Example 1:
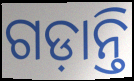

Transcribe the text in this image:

ଗଡ଼ାନ୍ତି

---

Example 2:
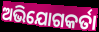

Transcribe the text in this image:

ଅଭିଯୋଗକର୍ତା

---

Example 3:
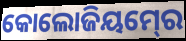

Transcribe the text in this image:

କୋଲୋଜିୟମ୍‍ରେ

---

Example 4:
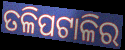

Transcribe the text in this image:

ତଳିପଟାଳିର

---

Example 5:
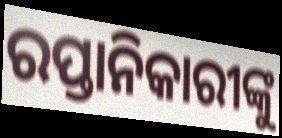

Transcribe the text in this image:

ରପ୍ତାନିକାରୀଙ୍କୁ